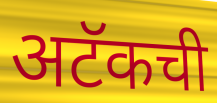
अटॅकची